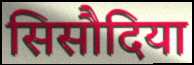
सिसौदिया